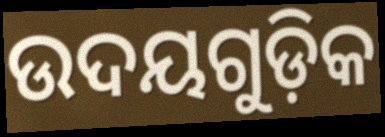
ଉଦୟଗୁଡ଼ିକ